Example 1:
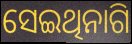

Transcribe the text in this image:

ସେଇଥିନାଗି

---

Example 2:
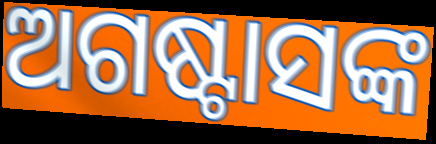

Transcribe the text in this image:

ଅଗଷ୍ଟାସଙ୍କ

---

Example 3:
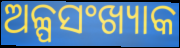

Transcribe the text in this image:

ଅଳ୍ପସଂଖ୍ୟାକ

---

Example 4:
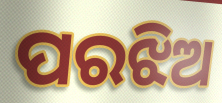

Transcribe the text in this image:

ପରଝିଅ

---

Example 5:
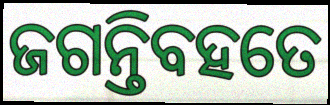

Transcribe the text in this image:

ଜଗନ୍ତିବହତେ